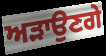
ਅੜਾਉਣਗੇ